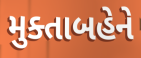
મુક્તાબહેને